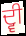
ਦ੍ਵੀ